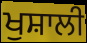
ਖੁਸ਼ਾਲੀ